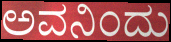
ಅವನಿಂದು